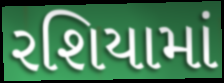
રશિયામાં